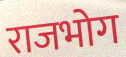
राजभोग